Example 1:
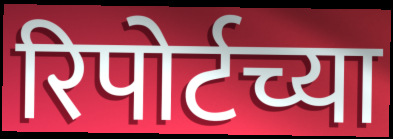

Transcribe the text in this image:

रिपोर्टच्या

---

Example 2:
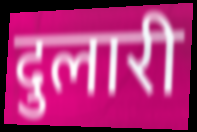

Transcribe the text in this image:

दुलारी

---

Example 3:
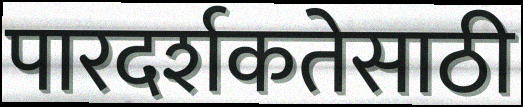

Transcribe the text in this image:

पारदर्शकतेसाठी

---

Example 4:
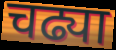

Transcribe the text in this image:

चढ्या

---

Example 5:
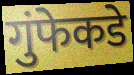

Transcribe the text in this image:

गुंफेकडे